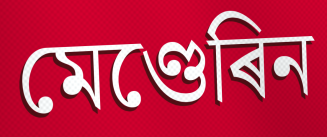
মেণ্ডেৰিন